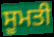
ਸੂਮਤੀ